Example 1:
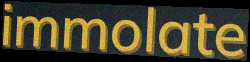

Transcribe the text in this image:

immolate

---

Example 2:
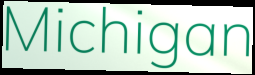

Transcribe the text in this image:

Michigan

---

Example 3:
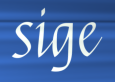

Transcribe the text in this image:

sige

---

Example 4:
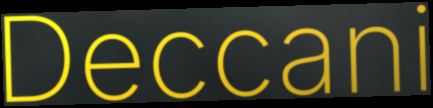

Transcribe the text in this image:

Deccani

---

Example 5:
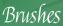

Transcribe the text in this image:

Brushes